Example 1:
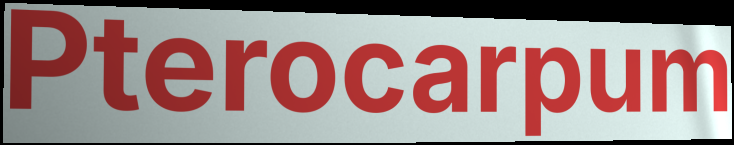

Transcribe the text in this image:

Pterocarpum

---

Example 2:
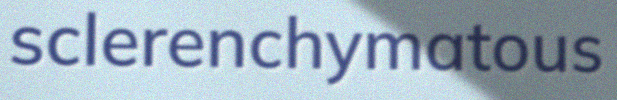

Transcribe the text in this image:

sclerenchymatous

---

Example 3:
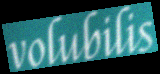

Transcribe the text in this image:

volubilis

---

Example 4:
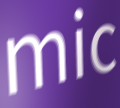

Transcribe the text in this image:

mic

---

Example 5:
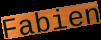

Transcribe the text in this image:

Fabien